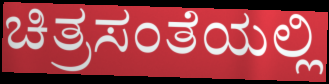
ಚಿತ್ರಸಂತೆಯಲ್ಲಿ